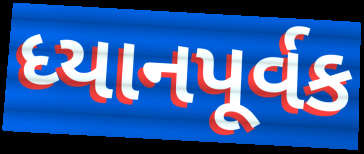
ધ્યાનપૂર્વક